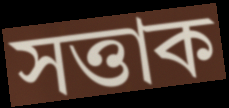
সত্তাক